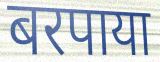
बरपाया